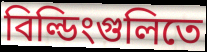
বিল্ডিংগুলিতে